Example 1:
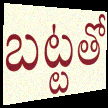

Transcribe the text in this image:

బట్టతో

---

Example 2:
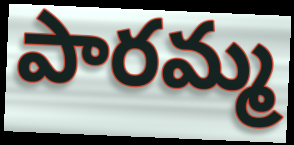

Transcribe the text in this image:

పారమ్మ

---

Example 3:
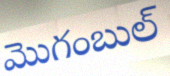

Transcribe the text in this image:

మొగంబుల్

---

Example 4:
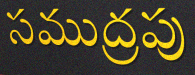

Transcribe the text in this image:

సముద్రపు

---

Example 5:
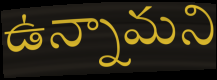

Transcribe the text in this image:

ఉన్నామని